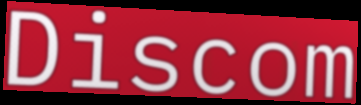
Discom